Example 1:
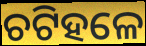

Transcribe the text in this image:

ଚଟିହଳେ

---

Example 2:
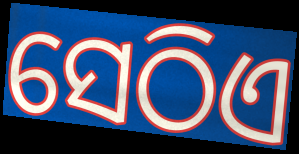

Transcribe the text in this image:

ସେଠିଏ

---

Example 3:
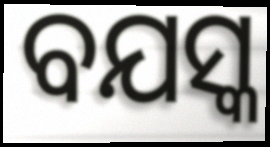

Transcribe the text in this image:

ବଯସ୍କ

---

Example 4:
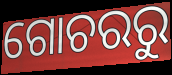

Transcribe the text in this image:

ଗୋଚରରୁ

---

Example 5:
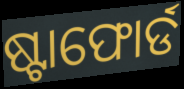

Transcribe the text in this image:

ଷ୍ଟାଫୋର୍ଡ